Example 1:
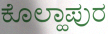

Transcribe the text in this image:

ಕೊಲ್ಹಾಪುರ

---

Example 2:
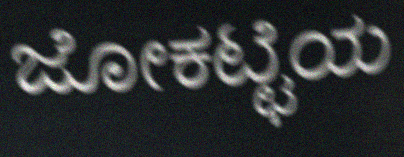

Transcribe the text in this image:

ಜೋಕಟ್ಟೆಯ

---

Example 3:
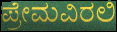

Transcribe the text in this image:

ಪ್ರೇಮವಿರಲಿ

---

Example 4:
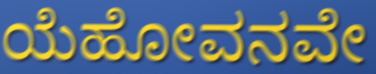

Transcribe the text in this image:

ಯೆಹೋವನವೇ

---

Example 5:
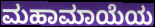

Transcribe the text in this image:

ಮಹಾಮಾಯೆಯ